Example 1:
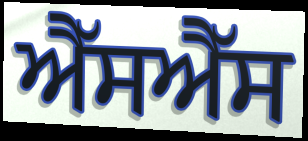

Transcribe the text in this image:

ਐੱਸਐੱਸ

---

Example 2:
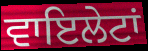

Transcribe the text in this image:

ਵਾਇਲੇਟਾਂ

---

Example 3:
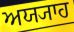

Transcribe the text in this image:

ਅਯ੍ਯਾਹ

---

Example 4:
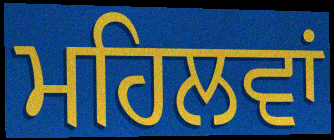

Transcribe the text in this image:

ਮਹਿਲਵਾਂ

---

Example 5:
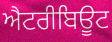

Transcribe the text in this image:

ਐਟਰੀਬਿਊਟ